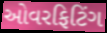
ઓવરફિટિંગ